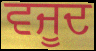
ਵਜੂਦ